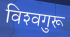
विश्वगुरू